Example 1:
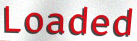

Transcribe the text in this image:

Loaded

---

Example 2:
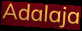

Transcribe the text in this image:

Adalaja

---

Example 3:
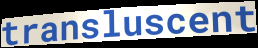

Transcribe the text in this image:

transluscent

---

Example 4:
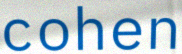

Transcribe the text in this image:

cohen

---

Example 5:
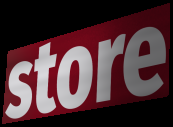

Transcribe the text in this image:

store